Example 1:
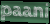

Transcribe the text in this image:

paani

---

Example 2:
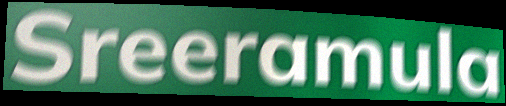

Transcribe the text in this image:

Sreeramula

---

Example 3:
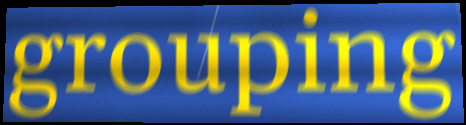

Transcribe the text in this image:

grouping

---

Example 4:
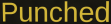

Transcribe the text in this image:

Punched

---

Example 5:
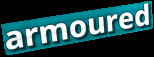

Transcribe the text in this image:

armoured